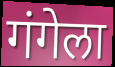
गंगेला